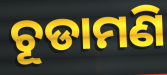
ଚୂଡାମଣି